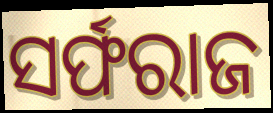
ସର୍ଫରାଜ